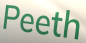
Peeth